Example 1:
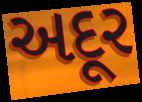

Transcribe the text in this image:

અદૂર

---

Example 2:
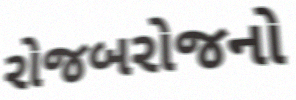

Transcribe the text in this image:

રોજબરોજનો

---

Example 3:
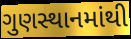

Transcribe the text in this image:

ગુણસ્થાનમાંથી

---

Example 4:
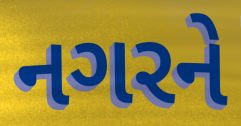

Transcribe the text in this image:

નગરને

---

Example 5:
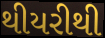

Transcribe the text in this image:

થીયરીથી